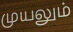
முயலும்